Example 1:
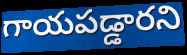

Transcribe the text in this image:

గాయపడ్డారని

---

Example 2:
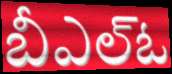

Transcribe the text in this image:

బీఎల్ఓ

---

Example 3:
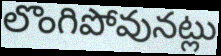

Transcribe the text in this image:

లొంగిపోవునట్లు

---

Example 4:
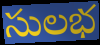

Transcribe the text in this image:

సులభ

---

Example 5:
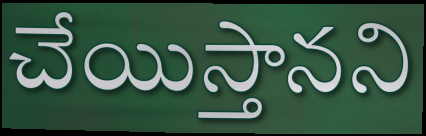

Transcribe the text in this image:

చేయిస్తానని